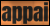
appai